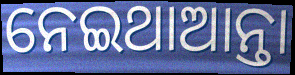
ନେଇଥାଆନ୍ତା